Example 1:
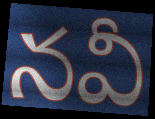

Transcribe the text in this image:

నవీ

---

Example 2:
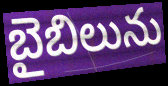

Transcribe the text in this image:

బైబిలును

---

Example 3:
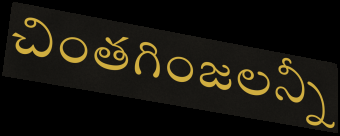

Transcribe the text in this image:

చింతగింజలన్నీ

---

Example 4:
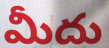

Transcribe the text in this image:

మీదు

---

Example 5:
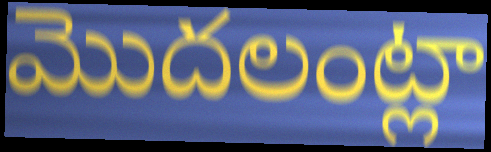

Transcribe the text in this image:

మొదలంట్లా